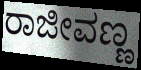
ರಾಜೀವಣ್ಣ